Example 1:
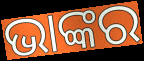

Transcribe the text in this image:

ଭାଙ୍କର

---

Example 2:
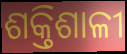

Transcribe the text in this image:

ଶକ୍ତିଶାଳୀ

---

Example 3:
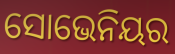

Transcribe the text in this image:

ସୋଭେନିୟର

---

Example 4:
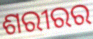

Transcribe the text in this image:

ଶରୀରର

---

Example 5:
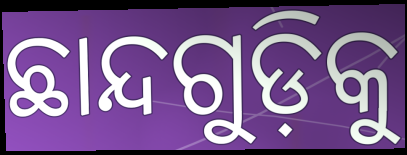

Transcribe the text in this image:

ଛାନ୍ଦଗୁଡ଼ିକୁ